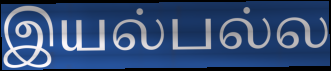
இயல்பல்ல